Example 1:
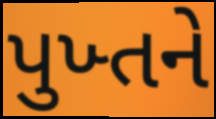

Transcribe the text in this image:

પુખ્તને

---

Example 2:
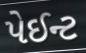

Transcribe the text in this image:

પેઈન્ટ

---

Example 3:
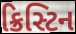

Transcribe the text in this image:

ક્રિસ્ટિન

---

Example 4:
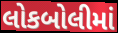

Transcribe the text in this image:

લોકબોલીમાં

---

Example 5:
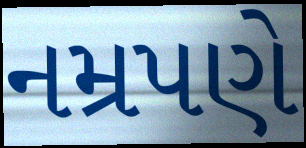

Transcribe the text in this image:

નમ્રપણે